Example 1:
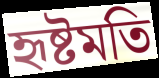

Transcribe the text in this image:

হৃষ্টমতি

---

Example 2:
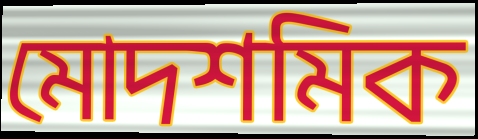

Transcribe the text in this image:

মোদশমিক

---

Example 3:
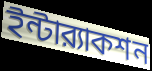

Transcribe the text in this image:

ইন্টার‍্যাকশন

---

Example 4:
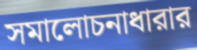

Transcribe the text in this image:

সমালোচনাধারার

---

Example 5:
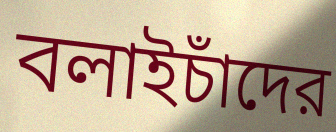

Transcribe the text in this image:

বলাইচাঁদের